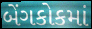
બેંગકોકમાં